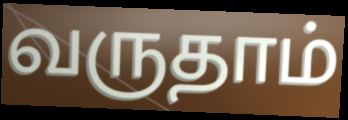
வருதாம்